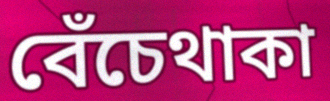
বেঁচেথাকা